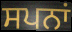
ਸਪਨਾਂ